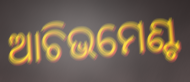
ଆଚିଭମେଣ୍ଟ